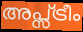
അപ്സ്ട്രീം